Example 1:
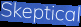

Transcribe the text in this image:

Skeptical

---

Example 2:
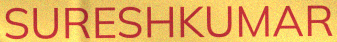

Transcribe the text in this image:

SURESHKUMAR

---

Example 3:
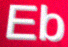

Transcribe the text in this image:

Eb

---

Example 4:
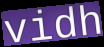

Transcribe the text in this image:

vidh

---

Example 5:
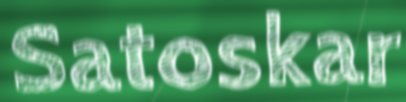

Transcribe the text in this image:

Satoskar